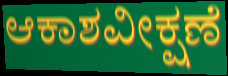
ಆಕಾಶವೀಕ್ಷಣೆ